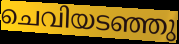
ചെവിയടഞ്ഞു